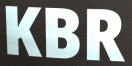
KBR